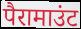
पैरामाउंट